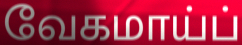
வேகமாய்ப்